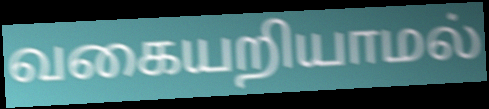
வகையறியாமல்